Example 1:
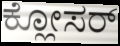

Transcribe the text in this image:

ಕ್ಲೋಸರ್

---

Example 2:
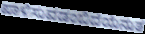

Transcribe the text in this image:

ಪಾಳಿಸುವಡಂಬಿದೆಯೆನುತ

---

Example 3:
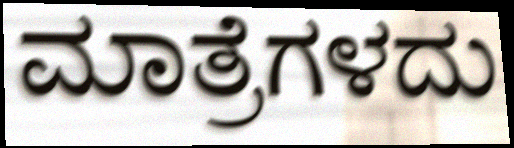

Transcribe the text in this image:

ಮಾತ್ರೆಗಳದು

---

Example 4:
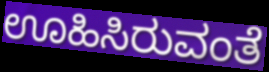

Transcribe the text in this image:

ಊಹಿಸಿರುವಂತೆ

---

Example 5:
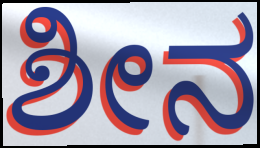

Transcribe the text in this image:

ಶೀನ